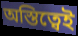
অস্তিত্বেই